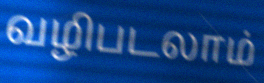
வழிபடலாம்